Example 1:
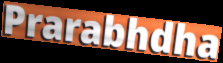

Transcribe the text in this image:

Prarabhdha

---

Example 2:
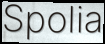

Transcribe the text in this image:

Spolia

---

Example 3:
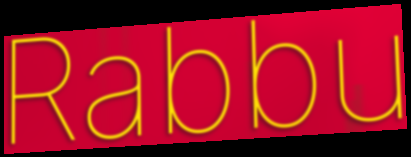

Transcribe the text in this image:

Rabbu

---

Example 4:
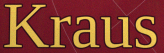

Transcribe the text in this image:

Kraus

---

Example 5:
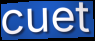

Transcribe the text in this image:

cuet